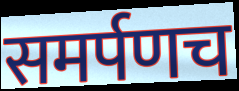
समर्पणच